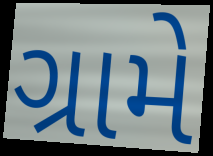
ગ્રામે